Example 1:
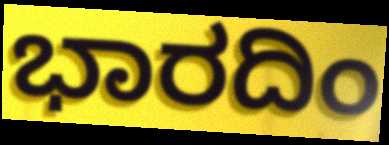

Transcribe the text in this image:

ಭಾರದಿಂ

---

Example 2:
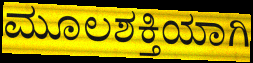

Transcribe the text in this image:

ಮೂಲಶಕ್ತಿಯಾಗಿ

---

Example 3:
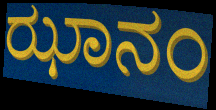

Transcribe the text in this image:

ಝಾನಂ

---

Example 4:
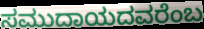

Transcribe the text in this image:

ಸಮುದಾಯದವರೆಂಬ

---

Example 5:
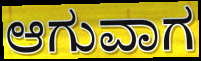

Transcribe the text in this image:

ಆಗುವಾಗ